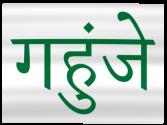
गहुंजे